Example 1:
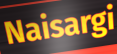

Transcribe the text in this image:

Naisargi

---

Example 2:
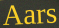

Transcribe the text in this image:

Aars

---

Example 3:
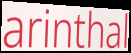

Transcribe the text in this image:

arinthal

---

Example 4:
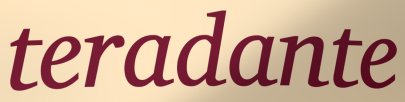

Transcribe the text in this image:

teradante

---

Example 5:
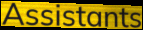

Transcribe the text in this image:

Assistants